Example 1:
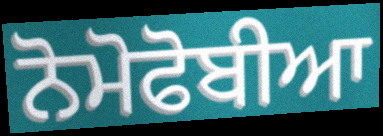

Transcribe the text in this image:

ਨੋਮੋਫੋਬੀਆ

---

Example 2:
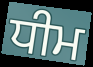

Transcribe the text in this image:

ਧੀਮ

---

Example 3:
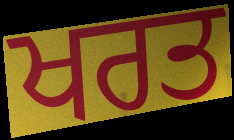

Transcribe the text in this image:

ਖਰਤ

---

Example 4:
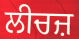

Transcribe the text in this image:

ਲੀਚਜ਼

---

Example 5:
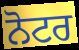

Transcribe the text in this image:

ਨੋਟਰ